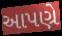
આપણ્રે